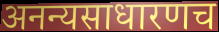
अनन्यसाधारणच